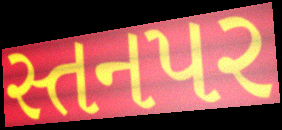
સ્તનપર